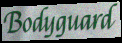
Bodyguard